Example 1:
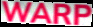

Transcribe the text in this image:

WARP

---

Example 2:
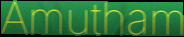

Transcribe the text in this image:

Amutham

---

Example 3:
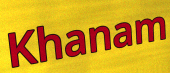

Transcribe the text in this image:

Khanam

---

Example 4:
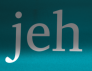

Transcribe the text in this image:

jeh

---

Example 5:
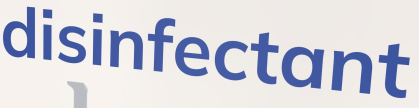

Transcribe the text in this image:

disinfectant